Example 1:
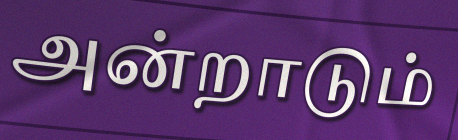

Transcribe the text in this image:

அன்றாடும்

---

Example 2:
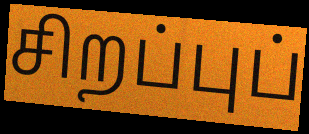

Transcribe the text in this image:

சிறப்புப்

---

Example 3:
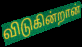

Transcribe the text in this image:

விடுகின்றான்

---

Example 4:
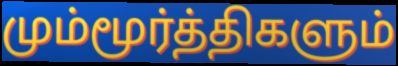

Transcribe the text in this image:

மும்மூர்த்திகளும்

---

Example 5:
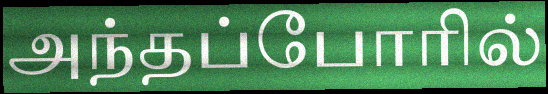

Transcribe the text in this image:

அந்தப்போரில்